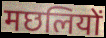
मछलियों